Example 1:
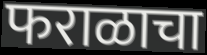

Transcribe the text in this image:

फराळाचा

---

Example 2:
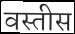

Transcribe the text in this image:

वस्तीस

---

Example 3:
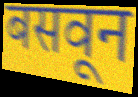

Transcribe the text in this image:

बसवून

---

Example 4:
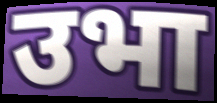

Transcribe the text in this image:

उभा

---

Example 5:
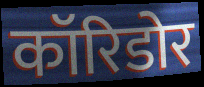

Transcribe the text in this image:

कॉरिडोर